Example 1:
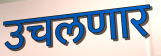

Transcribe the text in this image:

उचलणार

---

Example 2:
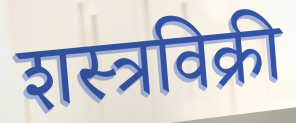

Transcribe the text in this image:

शस्त्रविक्री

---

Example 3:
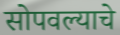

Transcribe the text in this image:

सोपवल्याचे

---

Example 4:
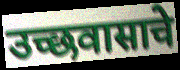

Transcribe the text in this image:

उच्छवासाचे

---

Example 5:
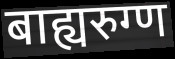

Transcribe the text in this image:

बाह्यरुग्ण